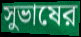
সুভাষের